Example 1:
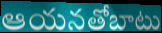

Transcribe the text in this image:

ఆయనతోబాటు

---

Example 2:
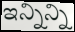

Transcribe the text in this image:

ఇన్నిన్ని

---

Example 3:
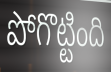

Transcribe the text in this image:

పోగొట్టింది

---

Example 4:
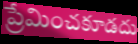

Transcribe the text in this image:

ప్రేమించకూడదు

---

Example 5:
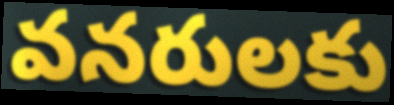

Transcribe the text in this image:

వనరులకు